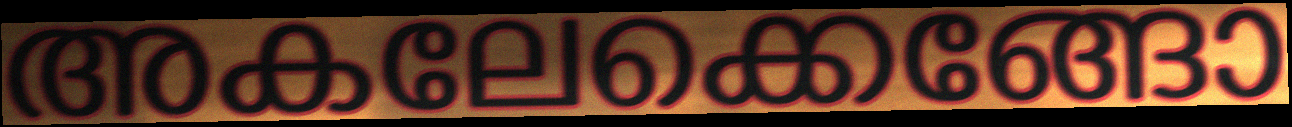
അകലേക്കെങ്ങോ